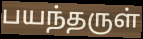
பயந்தருள்